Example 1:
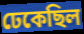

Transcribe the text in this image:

ঢেকেছিল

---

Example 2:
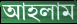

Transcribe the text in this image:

আহলাম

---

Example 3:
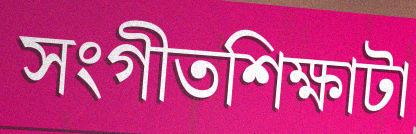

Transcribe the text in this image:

সংগীতশিক্ষাটা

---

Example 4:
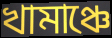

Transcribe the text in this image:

খামাঞ্চে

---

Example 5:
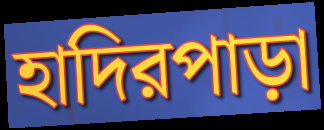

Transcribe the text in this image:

হাদিরপাড়া